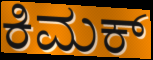
ಕಿಮಕ್